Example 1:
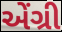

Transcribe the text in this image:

એંગ્રી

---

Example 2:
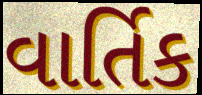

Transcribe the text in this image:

વાર્તિક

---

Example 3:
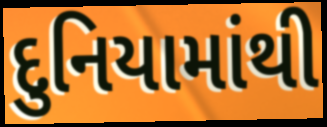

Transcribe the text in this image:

દુનિયામાંથી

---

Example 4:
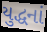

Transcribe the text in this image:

યુદ્ધનાં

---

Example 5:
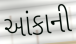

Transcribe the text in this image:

આંકાની